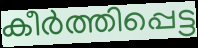
കീർത്തിപ്പെട്ട